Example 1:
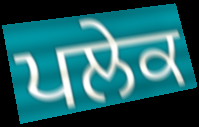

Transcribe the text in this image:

ਪਲੇਕ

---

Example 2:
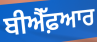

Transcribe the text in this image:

ਬੀਐੱਫ਼ਆਰ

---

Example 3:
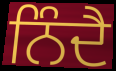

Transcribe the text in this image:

ਨਿੰਦੈ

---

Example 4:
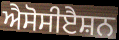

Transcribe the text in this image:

ਐਸੋਸੀੲੈਸ਼ਨ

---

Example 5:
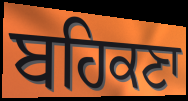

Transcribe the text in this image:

ਬਹਿਕਣਾ